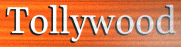
Tollywood